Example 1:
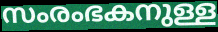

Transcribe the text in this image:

സംരംഭകനുള്ള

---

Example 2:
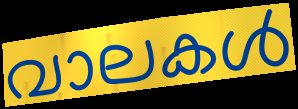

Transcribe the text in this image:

വാലകൾ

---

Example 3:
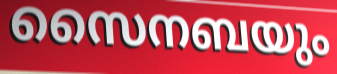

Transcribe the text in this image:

സൈനബയും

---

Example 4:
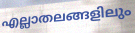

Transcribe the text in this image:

എല്ലാതലങ്ങളിലും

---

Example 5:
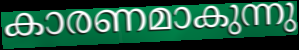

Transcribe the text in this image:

കാരണമാകുന്നു